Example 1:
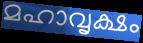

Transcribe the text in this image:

മഹാവൃക്ഷം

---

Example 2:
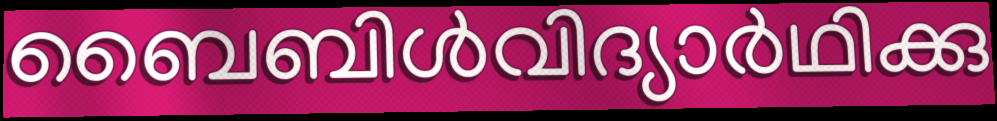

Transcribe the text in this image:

ബൈബിൾവിദ്യാർഥിക്കു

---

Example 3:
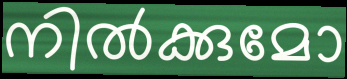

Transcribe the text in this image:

നിൽക്കുമോ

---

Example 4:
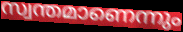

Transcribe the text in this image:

സ്വന്തമാണെന്നും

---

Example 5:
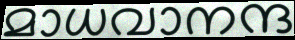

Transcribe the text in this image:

മാധവാനന്ദ